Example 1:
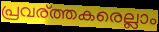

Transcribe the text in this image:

പ്രവര്ത്തകരെല്ലാം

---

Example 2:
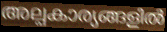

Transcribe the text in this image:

അല്പകാര്യങ്ങളിൽ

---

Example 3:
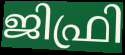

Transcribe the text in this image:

ജിഫ്രി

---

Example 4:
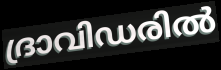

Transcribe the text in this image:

ദ്രാവിഡരിൽ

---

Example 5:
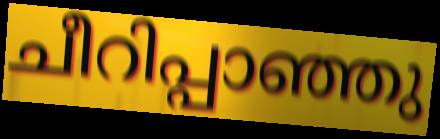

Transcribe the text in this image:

ചീറിപ്പാഞ്ഞു